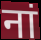
नां